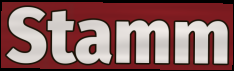
Stamm